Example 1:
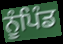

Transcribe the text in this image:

ਨੂੰਪਿੰਡ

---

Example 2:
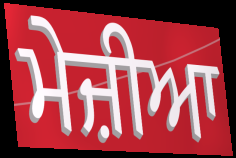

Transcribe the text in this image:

ਮੇਜ਼ੀਆ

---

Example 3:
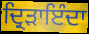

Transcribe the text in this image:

ਦ੍ਰਿੜਾਇੰਦਾ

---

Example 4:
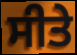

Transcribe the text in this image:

ਸੀਤੇ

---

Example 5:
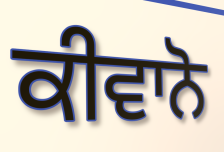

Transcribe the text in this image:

ਕੀਵਾਨੋ